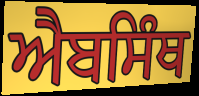
ਐਬਸਿੰਥ